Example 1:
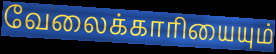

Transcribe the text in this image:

வேலைக்காரியையும்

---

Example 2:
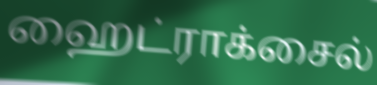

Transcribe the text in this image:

ஹைட்ராக்சைல்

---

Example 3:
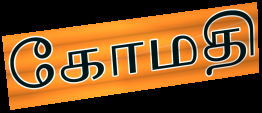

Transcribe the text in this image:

கோமதி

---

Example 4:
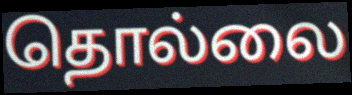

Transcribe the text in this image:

தொல்லை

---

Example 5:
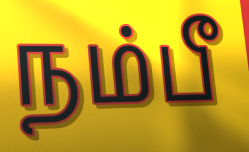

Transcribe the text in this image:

நம்பீ